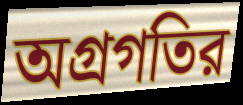
অগ্রগতির